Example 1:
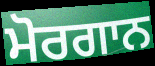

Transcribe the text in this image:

ਮੋਰਗਾਨ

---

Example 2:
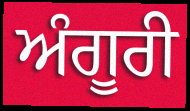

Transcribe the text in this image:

ਅੰਗੂਰੀ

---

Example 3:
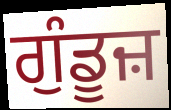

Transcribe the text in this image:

ਗੁੰਡੂਜ਼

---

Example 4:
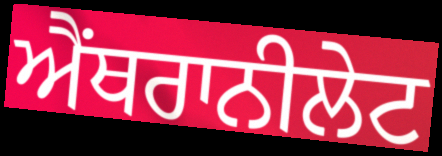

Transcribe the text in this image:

ਐਂਥਰਾਨੀਲੇਟ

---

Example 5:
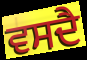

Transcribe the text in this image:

ਵਸਦੈ